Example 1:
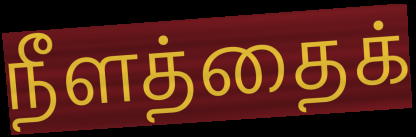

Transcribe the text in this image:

நீளத்தைக்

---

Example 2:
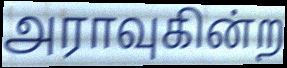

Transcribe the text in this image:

அராவுகின்ற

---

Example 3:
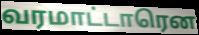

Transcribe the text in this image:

வரமாட்டாரென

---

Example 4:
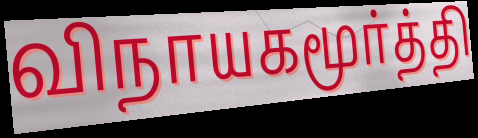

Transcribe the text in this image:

விநாயகமூர்த்தி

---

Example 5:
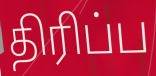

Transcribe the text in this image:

திரிப்ப